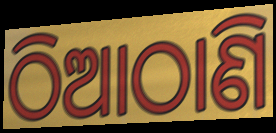
ଠିଆଠାଣି